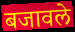
बजावले